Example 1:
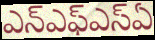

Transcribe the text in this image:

ఎన్ఎఫ్ఎస్ఏ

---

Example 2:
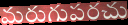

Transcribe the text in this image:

మరుగుపరచు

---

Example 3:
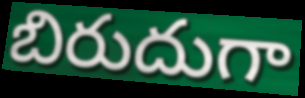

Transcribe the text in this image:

బిరుదుగా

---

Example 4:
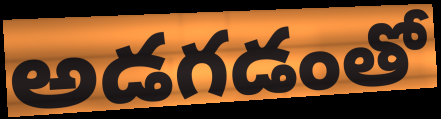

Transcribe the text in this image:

అడగడంతో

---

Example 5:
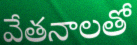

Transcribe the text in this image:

వేతనాలతో